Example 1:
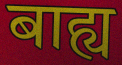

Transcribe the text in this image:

बाह्य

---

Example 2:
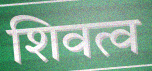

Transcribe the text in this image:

शिवत्व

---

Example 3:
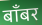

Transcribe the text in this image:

बाँबर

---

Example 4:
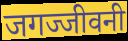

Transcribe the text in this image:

जगज्जीवनी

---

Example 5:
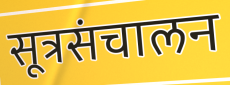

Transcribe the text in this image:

सूत्रसंचालन